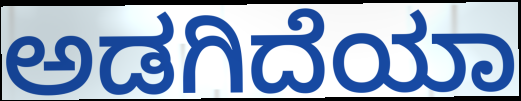
ಅಡಗಿದೆಯಾ